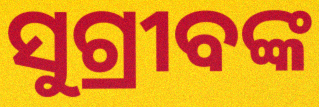
ସୁଗ୍ରୀବଙ୍କ